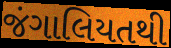
જંગાલિયતથી